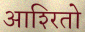
आश्रितो